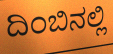
ದಿಂಬಿನಲ್ಲಿ